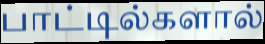
பாட்டில்களால்